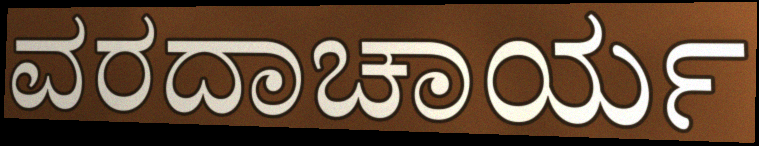
ವರದಾಚಾರ್ಯ